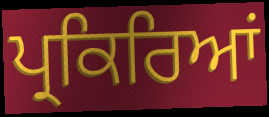
ਪ੍ਰਕਿਰਿਆਂ